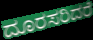
ದೂರಸರಿದರೆ